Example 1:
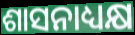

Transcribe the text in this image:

ଶାସନାଧ୍ୟକ୍ଷ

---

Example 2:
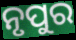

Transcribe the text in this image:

ନୃପୁର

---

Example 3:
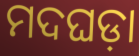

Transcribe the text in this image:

ମଦଘଡ଼ା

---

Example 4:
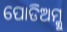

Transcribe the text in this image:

ପୋଡିଅମ୍କୁ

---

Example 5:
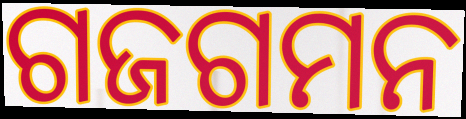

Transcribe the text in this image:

ଗଜଗମନ